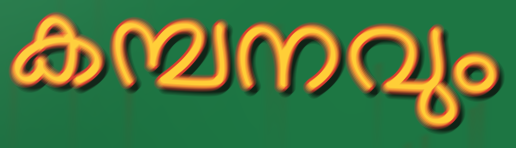
കമ്പനവും